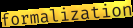
formalization